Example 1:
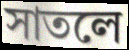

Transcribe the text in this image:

সাতলে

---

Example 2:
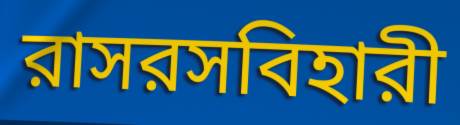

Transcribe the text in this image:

রাসরসবিহারী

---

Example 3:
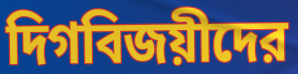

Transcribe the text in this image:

দিগবিজয়ীদের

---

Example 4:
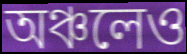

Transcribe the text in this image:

অঞ্চলেও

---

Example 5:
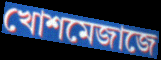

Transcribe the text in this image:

খোশমেজাজে